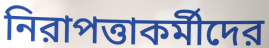
নিরাপত্তাকর্মীদের